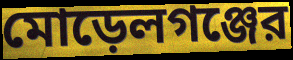
মোড়েলগঞ্জের